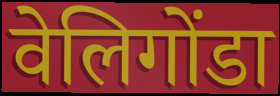
वेलिगोंडा